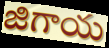
జిగాయ